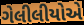
ગેલીલીયોએ